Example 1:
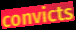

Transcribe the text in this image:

convicts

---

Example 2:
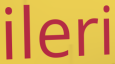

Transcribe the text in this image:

ileri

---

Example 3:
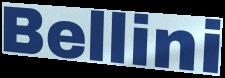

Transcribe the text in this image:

Bellini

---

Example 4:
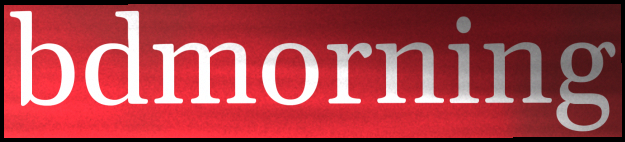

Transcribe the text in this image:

bdmorning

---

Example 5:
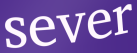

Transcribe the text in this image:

sever